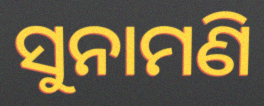
ସୁନାମଣି